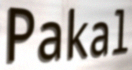
Pakal